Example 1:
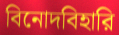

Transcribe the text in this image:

বিনোদবিহারি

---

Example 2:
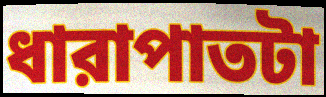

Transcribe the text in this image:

ধারাপাতটা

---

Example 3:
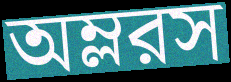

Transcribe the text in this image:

অম্লরস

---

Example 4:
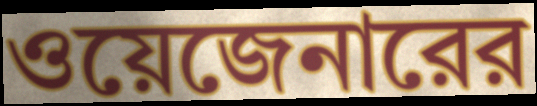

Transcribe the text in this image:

ওয়েজেনারের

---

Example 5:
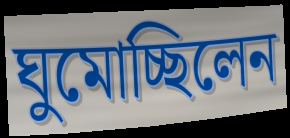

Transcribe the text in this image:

ঘুমোচ্ছিলেন